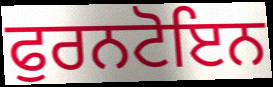
ਫੁਰਨਟੋਇਨ